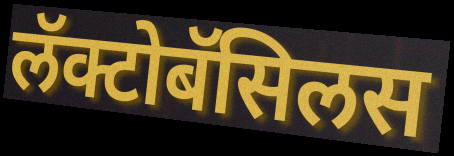
लॅक्टोबॅसिलस